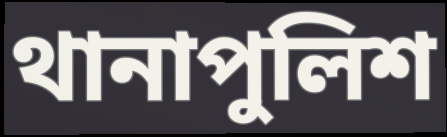
থানাপুলিশ